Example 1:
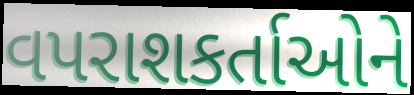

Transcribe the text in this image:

વપરાશકર્તાઓને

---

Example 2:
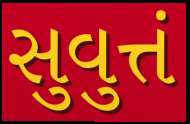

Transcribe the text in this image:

સુવુત્તં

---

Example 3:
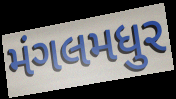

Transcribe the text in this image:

મંગલમધુર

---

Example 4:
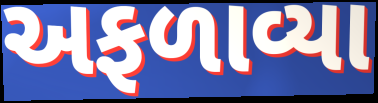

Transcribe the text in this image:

અફળાવ્યા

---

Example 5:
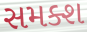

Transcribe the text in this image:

સમક્શ